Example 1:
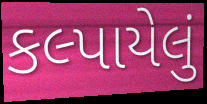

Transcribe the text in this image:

કલ્પાયેલું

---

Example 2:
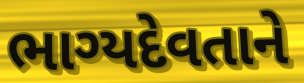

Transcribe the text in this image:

ભાગ્યદેવતાને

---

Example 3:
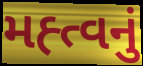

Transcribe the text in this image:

મહ્ત્વનું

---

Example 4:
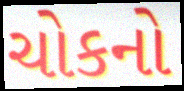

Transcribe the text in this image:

ચોકનો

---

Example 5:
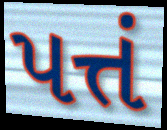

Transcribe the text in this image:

પત્તં